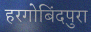
हरगोबिंदपुरा